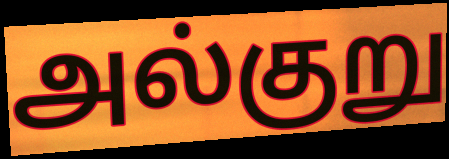
அல்குறு